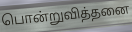
பொன்றுவித்தனை